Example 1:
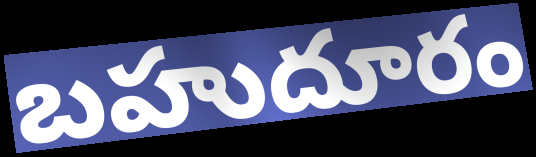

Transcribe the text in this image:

బహుదూరం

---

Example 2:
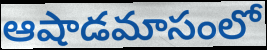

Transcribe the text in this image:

ఆషాడమాసంలో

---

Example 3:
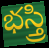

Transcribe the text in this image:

భస్త్రి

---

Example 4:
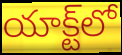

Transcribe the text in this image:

యాక్ట్‌లో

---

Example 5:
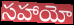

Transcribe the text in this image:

సహాయో